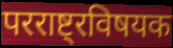
परराष्ट्रविषयक